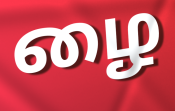
ழை